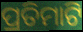
ପ୍ରତିମାଟି